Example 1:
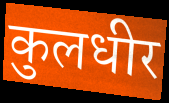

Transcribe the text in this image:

कुलधीर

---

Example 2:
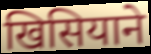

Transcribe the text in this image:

खिसियाने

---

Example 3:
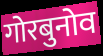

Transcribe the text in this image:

गोरबुनोव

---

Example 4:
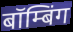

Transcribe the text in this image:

बॉम्बिंग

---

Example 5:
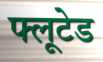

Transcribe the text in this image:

फ्लूटेड